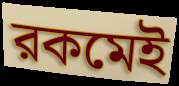
রকমেই